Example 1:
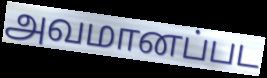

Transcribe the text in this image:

அவமானப்பட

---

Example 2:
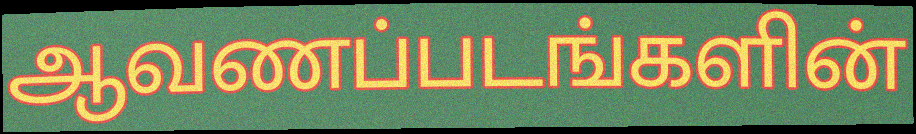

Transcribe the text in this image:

ஆவணப்படங்களின்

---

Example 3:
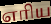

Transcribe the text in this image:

எரிய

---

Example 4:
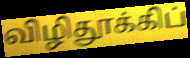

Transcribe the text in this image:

விழிதூக்கிப்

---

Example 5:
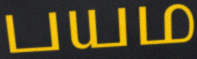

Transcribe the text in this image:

பயம